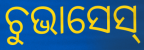
ଚୁଭାସେସ୍